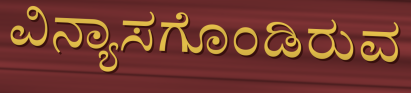
ವಿನ್ಯಾಸಗೊಂಡಿರುವ